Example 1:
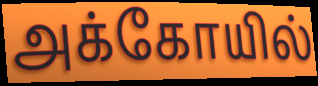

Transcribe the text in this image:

அக்கோயில்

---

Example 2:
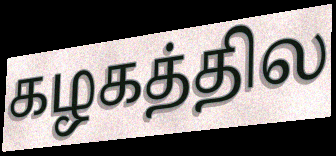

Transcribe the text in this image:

கழகத்தில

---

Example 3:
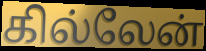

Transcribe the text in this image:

கில்லேன்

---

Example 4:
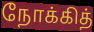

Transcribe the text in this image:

நோக்கித்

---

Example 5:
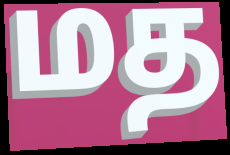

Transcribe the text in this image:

மத